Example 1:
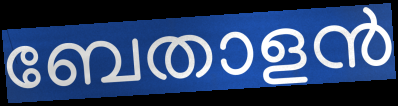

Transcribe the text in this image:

ബേതാളൻ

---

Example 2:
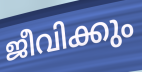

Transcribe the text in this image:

ജീവിക്കും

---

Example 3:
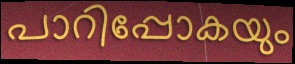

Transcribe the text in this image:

പാറിപ്പോകയും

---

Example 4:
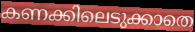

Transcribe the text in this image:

കണക്കിലെടുക്കാതെ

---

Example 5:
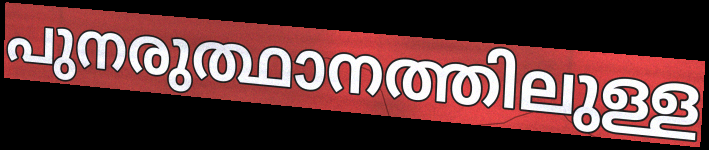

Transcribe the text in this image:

പുനരുത്ഥാനത്തിലുള്ള